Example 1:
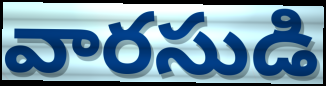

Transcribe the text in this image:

వారసుడి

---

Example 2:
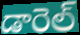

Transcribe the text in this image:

డారెల్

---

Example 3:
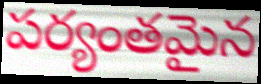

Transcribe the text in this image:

పర్యంతమైన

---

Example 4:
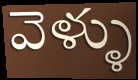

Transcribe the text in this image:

వెళ్ళు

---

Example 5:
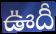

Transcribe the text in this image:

ఊదీ